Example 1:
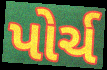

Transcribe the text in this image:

પોર્ચ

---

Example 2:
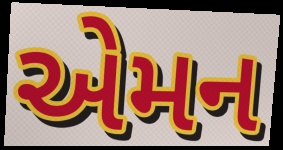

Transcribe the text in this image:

એમન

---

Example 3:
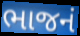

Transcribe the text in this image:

ભાજનં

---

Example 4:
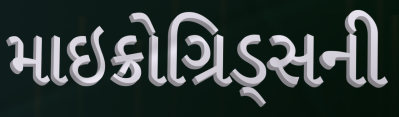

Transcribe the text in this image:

માઇક્રોગ્રિડ્સની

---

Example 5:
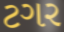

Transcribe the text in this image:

ટગર